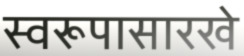
स्वरूपासारखे